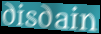
disdain